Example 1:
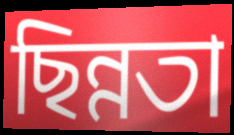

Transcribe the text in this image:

ছিন্নতা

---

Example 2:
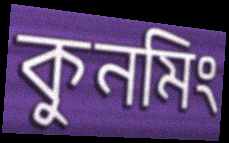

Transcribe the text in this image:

কুনমিং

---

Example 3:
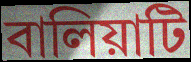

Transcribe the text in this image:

বালিয়াটি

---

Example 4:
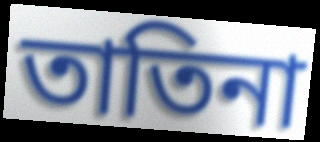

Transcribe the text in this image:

তাতিনা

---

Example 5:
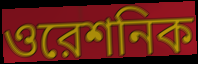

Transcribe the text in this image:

ওরেশনিক